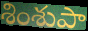
శింశుపా